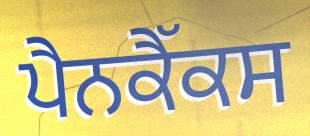
ਪੈਨਕੈੱਕਸ